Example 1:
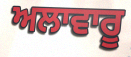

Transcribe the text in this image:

ਅਲਾਵਾਰੂ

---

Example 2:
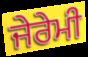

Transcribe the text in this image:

ਜੇਰੇਮੀ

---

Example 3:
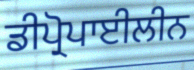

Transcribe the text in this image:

ਡੀਪ੍ਰੋਪਾਈਲੀਨ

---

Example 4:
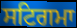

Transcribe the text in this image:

ਸਟਿਗਮਾ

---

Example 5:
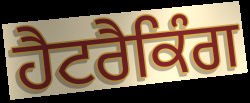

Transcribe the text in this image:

ਹੈਟਰੈਕਿੰਗ